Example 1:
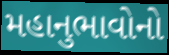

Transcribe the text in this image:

મહાનુભાવોનો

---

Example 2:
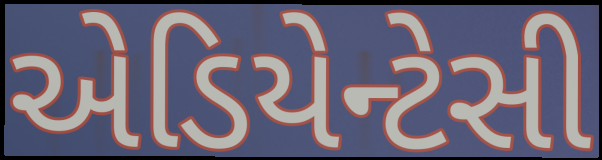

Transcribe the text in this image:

એડિયેન્ટેસી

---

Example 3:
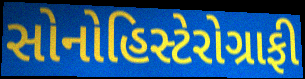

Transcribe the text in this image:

સોનોહિસ્ટેરોગ્રાફી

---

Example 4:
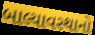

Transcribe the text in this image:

બાલ્યાવસ્થાનો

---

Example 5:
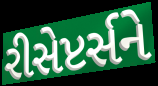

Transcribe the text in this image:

રીસેપ્ટર્સને